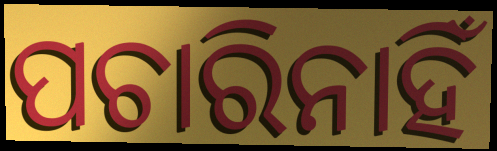
ପଚାରିନାହିଁ